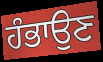
ਹੰਭਾਉਣ